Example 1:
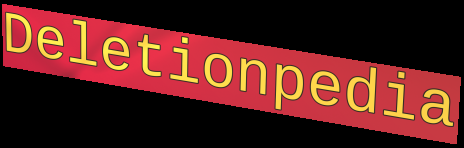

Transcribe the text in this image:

Deletionpedia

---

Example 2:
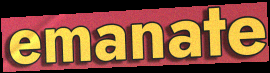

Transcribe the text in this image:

emanate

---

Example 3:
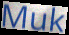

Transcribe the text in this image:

Muk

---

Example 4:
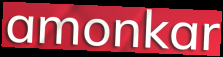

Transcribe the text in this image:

amonkar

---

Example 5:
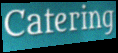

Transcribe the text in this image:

Catering